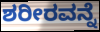
ಶರೀರವನ್ನೆ